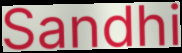
Sandhi